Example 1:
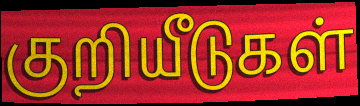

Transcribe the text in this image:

குறியீடுகள்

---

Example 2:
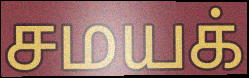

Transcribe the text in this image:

சமயக்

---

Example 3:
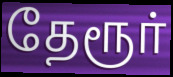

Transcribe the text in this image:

தேரூர்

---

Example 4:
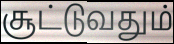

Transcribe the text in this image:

சூட்டுவதும்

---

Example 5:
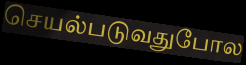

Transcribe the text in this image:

செயல்படுவதுபோல